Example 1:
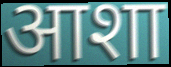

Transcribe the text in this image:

आशा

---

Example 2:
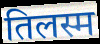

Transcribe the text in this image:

तिलस्म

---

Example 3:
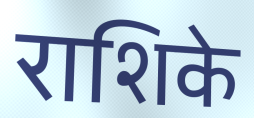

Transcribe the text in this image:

राशिके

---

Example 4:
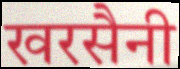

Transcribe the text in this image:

खरसैनी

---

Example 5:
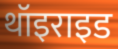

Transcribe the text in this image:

थॉइराइड